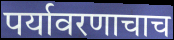
पर्यावरणाचाच